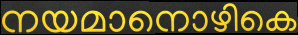
നയമാനൊഴികെ